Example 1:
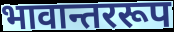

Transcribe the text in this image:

भावान्तररूप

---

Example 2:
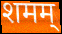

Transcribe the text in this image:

शमम्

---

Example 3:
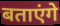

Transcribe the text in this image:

बताएंगे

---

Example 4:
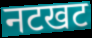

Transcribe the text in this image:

नटखट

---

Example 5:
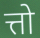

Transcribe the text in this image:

त्तो